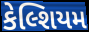
કેલ્શિયમ